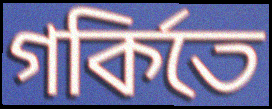
গর্কিতে